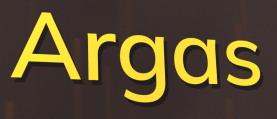
Argas